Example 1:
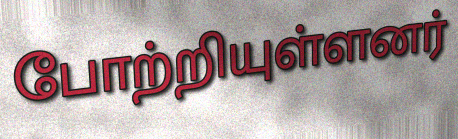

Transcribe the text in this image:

போற்றியுள்ளனர்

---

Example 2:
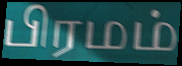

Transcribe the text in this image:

பிரமம்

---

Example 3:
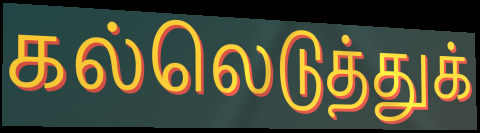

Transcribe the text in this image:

கல்லெடுத்துக்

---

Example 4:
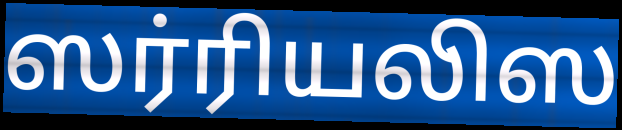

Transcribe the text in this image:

ஸர்ரியலிஸ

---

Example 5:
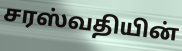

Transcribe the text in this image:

சரஸ்வதியின்